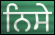
ਨਿਸੇ